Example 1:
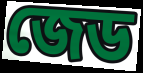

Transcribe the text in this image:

জেড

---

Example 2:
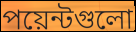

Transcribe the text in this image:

পয়েন্টগুলো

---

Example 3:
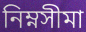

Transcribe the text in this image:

নিম্নসীমা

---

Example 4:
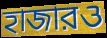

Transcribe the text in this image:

হাজারও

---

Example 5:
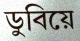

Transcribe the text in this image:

ডুবিয়ে